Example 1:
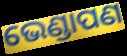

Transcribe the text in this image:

ଭେଣ୍ଡାପଣ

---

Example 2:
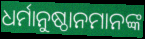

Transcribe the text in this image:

ଧର୍ମାନୁଷ୍ଠାନମାନଙ୍କ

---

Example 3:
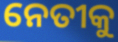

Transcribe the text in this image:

ନେତୀକୁ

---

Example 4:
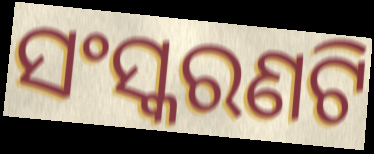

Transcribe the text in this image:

ସଂସ୍କରଣଟି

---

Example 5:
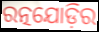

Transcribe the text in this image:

ରତ୍ନଯୋଡ଼ିର